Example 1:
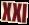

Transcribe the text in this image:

XXI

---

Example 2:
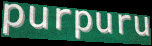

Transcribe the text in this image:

purpuru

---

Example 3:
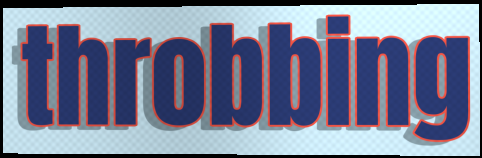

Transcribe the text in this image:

throbbing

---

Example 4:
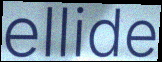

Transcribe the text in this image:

ellide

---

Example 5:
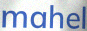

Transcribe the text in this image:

mahel